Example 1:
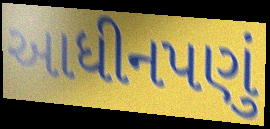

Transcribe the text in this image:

આધીનપણું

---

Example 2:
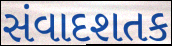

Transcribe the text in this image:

સંવાદશતક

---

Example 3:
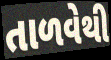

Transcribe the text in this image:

તાળવેથી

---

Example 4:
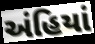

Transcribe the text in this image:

અંહિયાં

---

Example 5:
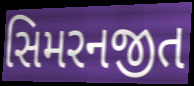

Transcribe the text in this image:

સિમરનજીત